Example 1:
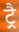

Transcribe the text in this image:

ट्रै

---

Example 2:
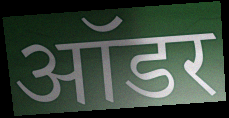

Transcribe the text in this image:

ऑडर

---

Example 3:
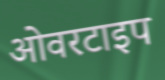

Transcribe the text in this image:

ओवरटाइप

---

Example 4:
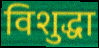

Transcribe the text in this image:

विशुद्धा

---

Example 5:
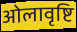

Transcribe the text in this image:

ओलावृष्टि